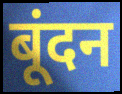
बूंदन